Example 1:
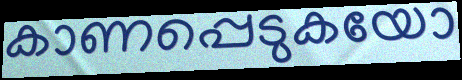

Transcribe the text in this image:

കാണപ്പെടുകയോ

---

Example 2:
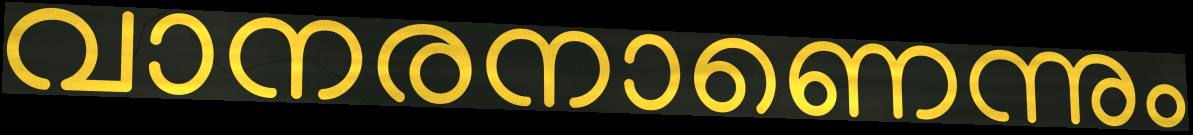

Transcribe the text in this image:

വാനരനാണെന്നും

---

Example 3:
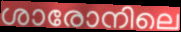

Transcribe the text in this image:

ശാരോനിലെ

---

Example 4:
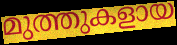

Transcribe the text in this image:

മുത്തുകളായ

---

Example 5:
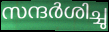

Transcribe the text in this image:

സന്ദർശിച്ചു